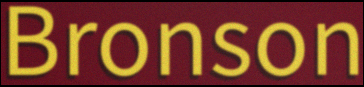
Bronson